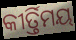
କୀର୍ତ୍ତିମୟ